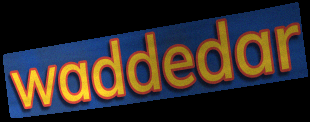
waddedar